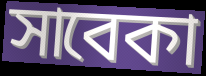
সাবেকা